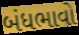
બંધભાવો